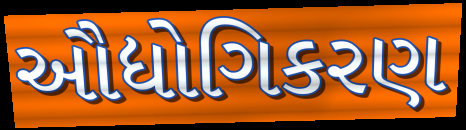
ઔદ્યોગિકરણ